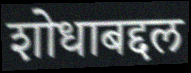
शोधाबद्दल